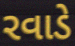
રવાડે